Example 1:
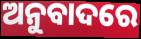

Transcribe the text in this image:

ଅନୁବାଦରେ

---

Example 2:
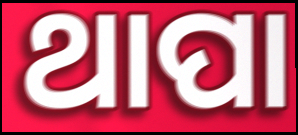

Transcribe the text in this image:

ଥାପା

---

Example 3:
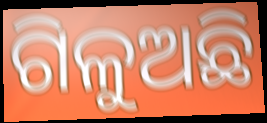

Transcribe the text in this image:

ଗିଳୁଅଛି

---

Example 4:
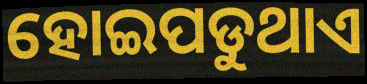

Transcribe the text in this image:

ହୋଇପଡୁଥାଏ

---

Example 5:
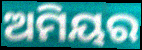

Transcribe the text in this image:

ଅମିୟର